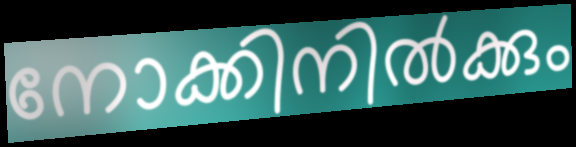
നോക്കിനിൽക്കും